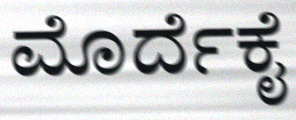
ಮೊರ್ದೆಕೈ